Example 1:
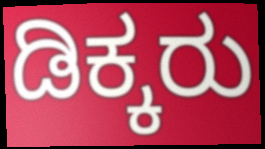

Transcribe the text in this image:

ಡಿಕ್ಕರು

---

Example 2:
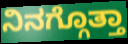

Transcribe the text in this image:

ನಿನಗ್ಗೊತ್ತಾ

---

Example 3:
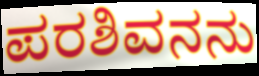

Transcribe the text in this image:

ಪರಶಿವನನು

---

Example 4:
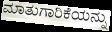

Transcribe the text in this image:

ಮಾತುಗಾರಿಕೆಯನ್ನು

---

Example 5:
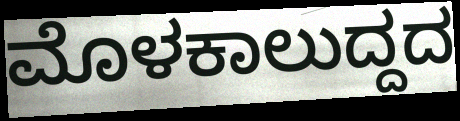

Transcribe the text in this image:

ಮೊಳಕಾಲುದ್ದದ